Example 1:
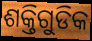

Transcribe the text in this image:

ଶକ୍ତିଗୁଡିକ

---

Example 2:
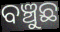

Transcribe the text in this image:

ବଞ୍ଚୁଛ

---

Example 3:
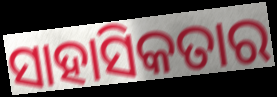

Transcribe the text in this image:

ସାହାସିକତାର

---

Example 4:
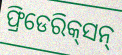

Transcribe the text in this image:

ଫ୍ରିଡେରିକ୍‌ସନ୍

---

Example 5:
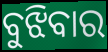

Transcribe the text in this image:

ବୁଝିବାର